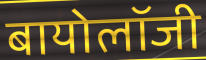
बायोलॉजी